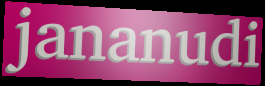
jananudi